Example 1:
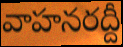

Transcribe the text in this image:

వాహనరద్దీ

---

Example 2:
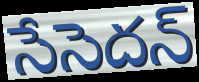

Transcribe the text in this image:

సేసెదన్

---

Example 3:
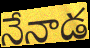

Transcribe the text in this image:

నేనాడ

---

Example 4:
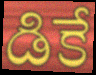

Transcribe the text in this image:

డికే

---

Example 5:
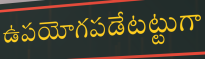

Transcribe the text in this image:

ఉపయోగపడేటట్టుగా